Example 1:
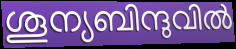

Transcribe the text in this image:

ശൂന്യബിന്ദുവിൽ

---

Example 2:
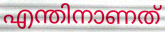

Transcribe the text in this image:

എന്തിനാണത്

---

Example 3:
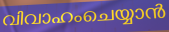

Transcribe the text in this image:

വിവാഹംചെയ്യാൻ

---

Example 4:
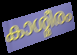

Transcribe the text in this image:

കാശ്മീരം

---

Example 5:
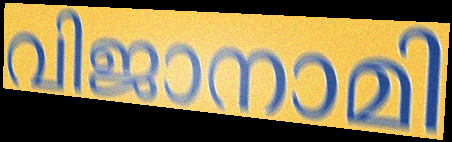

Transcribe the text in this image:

വിജാനാമി